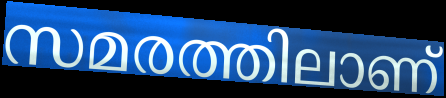
സമരത്തിലാണ്